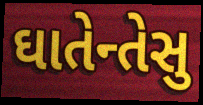
ઘાતેન્તેસુ